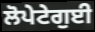
ਲੋਪੇਟੇਗੁਈ